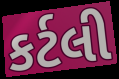
કર્ટલી